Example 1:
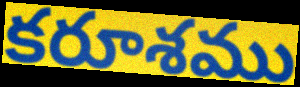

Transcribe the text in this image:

కరూశము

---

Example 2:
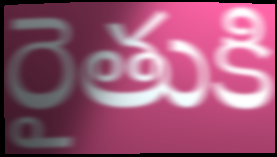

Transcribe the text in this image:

రైతుకి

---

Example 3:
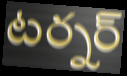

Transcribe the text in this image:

టర్నర్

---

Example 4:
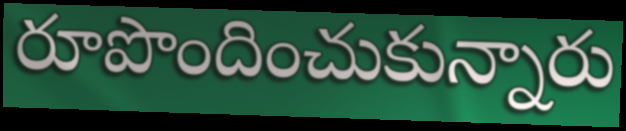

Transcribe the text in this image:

రూపొందించుకున్నారు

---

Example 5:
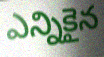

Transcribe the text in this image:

ఎన్నికైన